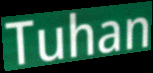
Tuhan